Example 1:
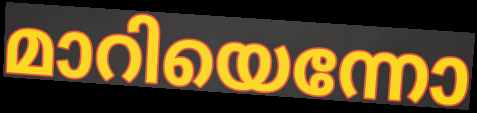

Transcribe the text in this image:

മാറിയെന്നോ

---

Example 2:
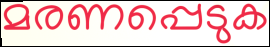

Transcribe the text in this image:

മരണപ്പെടുക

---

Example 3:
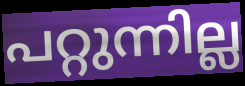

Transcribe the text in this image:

പറ്റുന്നില്ല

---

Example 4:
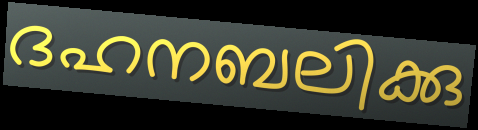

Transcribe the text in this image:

ദഹനബലിക്കു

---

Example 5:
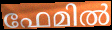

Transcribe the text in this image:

ഫേമിൽ